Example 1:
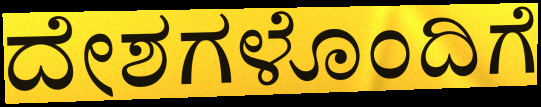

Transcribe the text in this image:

ದೇಶಗಳೊಂದಿಗೆ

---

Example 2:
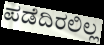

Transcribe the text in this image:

ಪಡೆದಿರಲಿಲ್ಲ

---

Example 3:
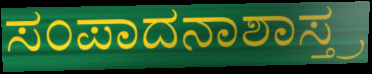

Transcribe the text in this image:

ಸಂಪಾದನಾಶಾಸ್ತ್ರ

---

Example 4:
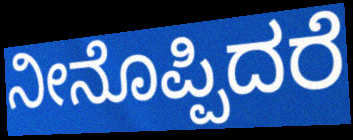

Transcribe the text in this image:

ನೀನೊಪ್ಪಿದರೆ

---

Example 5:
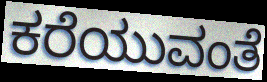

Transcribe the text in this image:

ಕರೆಯುವಂತೆ